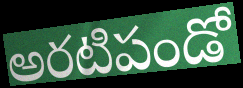
అరటిపండో